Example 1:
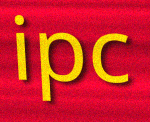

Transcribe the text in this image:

ipc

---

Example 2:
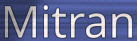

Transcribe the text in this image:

Mitran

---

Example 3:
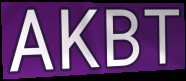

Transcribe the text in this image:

AKBT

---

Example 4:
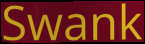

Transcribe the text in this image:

Swank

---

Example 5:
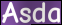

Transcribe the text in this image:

Asda